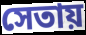
সেতায়